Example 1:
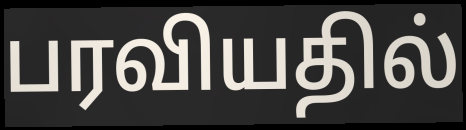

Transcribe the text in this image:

பரவியதில்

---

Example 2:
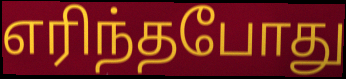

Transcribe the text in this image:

எரிந்தபோது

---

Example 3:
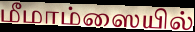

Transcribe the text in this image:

மீமாம்ஸையில்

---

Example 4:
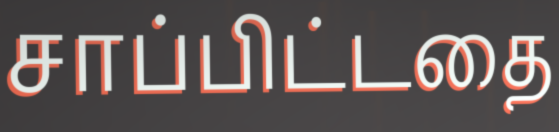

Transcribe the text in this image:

சாப்பிட்டதை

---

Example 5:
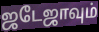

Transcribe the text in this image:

ஜடேஜாவும்